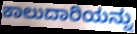
ಕಾಲುದಾರಿಯನ್ನು